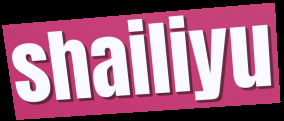
shailiyu